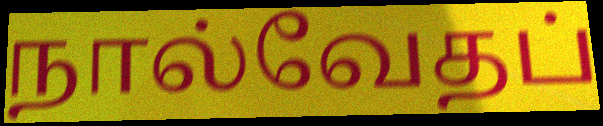
நால்வேதப்